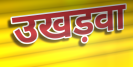
उखड़वा